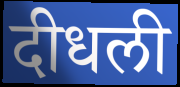
दीधली